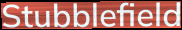
Stubblefield